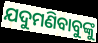
ଯଦୁମଣିବାବୁଙ୍କୁ